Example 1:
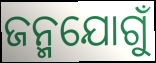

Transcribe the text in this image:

ଜନ୍ମଯୋଗୁଁ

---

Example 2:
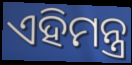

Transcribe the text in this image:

ଏହିମନ୍ତ୍ର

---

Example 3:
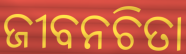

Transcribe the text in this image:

ଜୀବନଚିତା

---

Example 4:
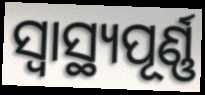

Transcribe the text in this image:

ସ୍ବାସ୍ଥ୍ୟପୂର୍ଣ୍ଣ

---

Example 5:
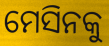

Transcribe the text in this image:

ମେସିନକୁ